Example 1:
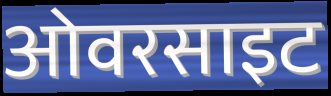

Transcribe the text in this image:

ओवरसाइट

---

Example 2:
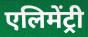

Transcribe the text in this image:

एलिमेंट्री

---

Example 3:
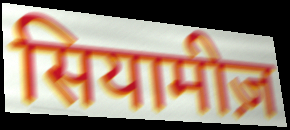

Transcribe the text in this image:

सियामीज़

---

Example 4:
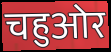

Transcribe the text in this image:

चहुओर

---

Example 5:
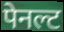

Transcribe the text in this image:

पेनल्ट